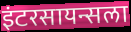
इंटरसायन्सला